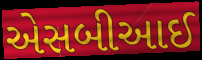
એસબીઆઈ